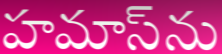
హమాస్‌ను